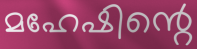
മഹേഷിന്റെ